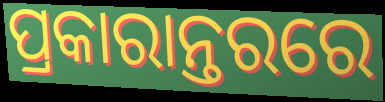
ପ୍ରକାରାନ୍ତରରେ